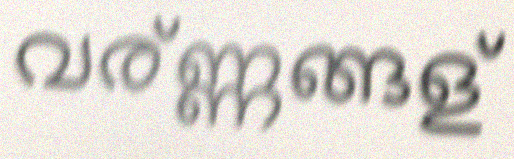
വര്ണ്ണങ്ങള്